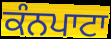
ਕੰਨਪਾਟਾ